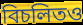
বিচলিতও